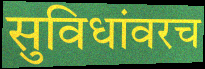
सुविधांवरच